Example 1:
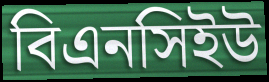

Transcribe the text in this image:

বিএনসিইউ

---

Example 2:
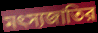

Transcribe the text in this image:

মৎস্যজাতির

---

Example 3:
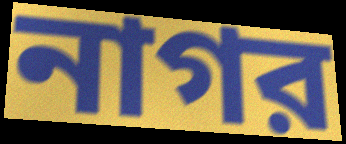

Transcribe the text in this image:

নাগর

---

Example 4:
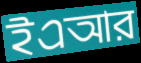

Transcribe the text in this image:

ইএআর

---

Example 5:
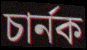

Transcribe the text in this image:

চার্নক